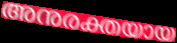
അനുരക്തയായ